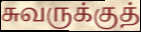
சுவருக்குத்